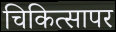
चिकित्सापर